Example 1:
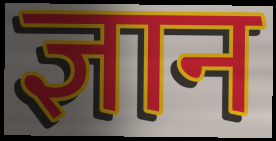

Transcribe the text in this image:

ज्ञान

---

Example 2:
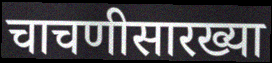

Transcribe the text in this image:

चाचणीसारख्या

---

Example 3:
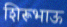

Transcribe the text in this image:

शिरूभाऊ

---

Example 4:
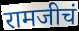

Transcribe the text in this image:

रामजीचं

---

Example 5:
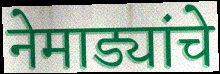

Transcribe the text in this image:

नेमाड्यांचे